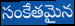
సంకేతమైన